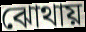
ঝোথায়